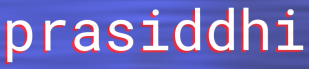
prasiddhi